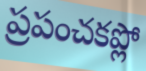
ప్రపంచకప్లో